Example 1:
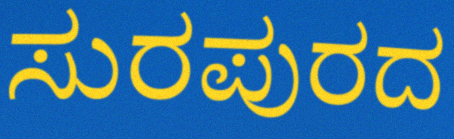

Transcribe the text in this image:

ಸುರಪುರದ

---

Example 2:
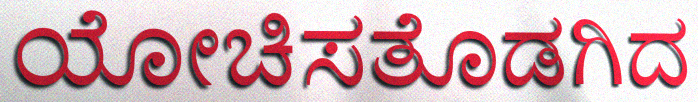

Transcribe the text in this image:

ಯೋಚಿಸತೊಡಗಿದ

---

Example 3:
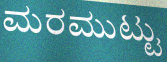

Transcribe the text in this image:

ಮರಮುಟ್ಟು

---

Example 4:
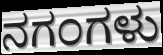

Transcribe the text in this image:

ನಗಂಗಳು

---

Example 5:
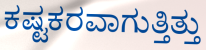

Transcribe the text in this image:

ಕಷ್ಟಕರವಾಗುತ್ತಿತ್ತು